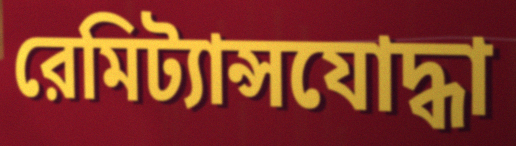
রেমিট্যান্সযোদ্ধা